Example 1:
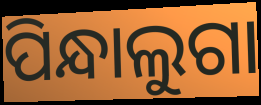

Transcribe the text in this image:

ପିନ୍ଧାଲୁଗା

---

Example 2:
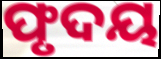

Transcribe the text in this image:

ଫୃଦୟ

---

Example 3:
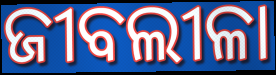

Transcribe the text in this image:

ଜୀବଲୀଳା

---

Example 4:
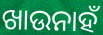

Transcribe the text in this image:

ଖାଉନାହଁ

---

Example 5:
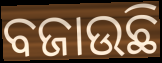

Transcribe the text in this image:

ବଜାଉଛି